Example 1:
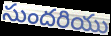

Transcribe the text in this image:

సుందరియు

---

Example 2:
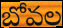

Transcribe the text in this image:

బోవల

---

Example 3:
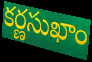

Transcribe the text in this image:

కర్ణసుఖాం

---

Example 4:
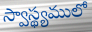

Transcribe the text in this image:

స్వాస్థ్యములో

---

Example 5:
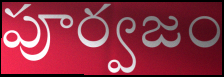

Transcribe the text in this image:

పూర్వజం